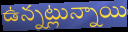
ఉన్నట్లున్నాయి